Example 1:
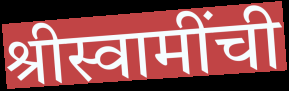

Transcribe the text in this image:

श्रीस्वामींची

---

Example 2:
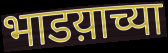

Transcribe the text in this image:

भाडय़ाच्या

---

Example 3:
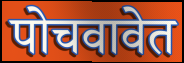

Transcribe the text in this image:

पोचवावेत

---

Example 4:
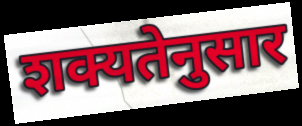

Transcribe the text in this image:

शक्यतेनुसार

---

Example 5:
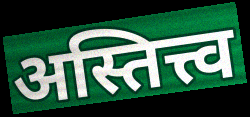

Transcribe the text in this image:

अस्तित्त्व